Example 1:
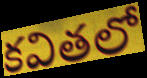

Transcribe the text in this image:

కవితలో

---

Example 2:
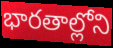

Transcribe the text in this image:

భారతాల్లోని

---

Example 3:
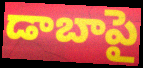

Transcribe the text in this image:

డాబాపై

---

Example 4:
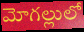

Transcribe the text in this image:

మోగల్లులో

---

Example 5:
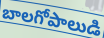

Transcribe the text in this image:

బాలగోపాలుడి